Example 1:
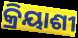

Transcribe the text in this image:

କ୍ରିୟାଶୀ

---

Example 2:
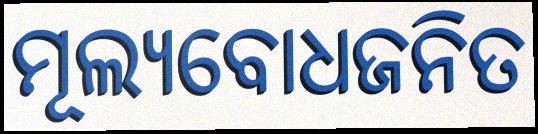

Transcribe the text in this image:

ମୂଲ୍ୟବୋଧଜନିତ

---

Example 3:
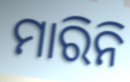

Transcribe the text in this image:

ମାରିନି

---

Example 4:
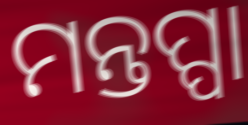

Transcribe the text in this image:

ମନ୍ତପ୍ପା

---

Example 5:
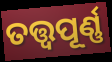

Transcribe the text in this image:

ତତ୍ତ୍ୱପୂର୍ଣ୍ଣ